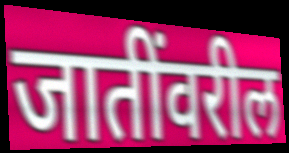
जातींवरील